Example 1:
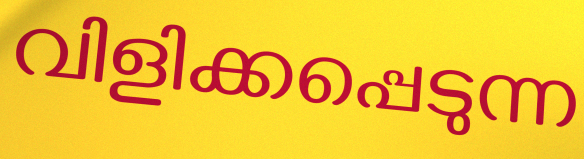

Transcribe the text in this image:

വിളിക്കപ്പെടുന്ന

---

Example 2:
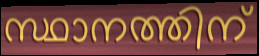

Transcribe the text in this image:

സ്ഥാനത്തിന്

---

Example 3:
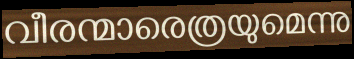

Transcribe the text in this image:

വീരന്മാരെത്രയുമെന്നു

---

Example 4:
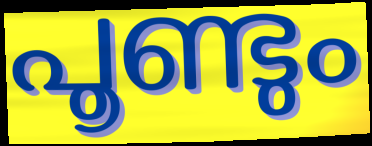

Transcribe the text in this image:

പൂണ്ടും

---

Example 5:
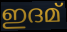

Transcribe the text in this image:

ഇദമ്